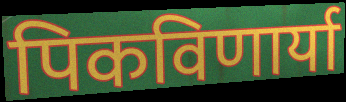
पिकविणार्या